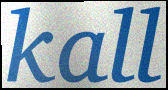
kall